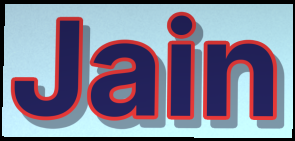
Jain